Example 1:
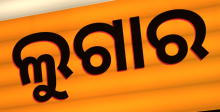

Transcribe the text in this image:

ଲୁଗାର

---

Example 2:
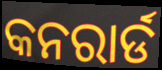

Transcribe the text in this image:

କନରାର୍ଡ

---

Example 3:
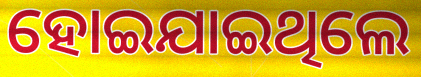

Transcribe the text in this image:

ହୋଇଯାଇଥିଲେ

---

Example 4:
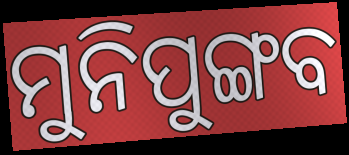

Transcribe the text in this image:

ମୁନିପୁଙ୍ଗବ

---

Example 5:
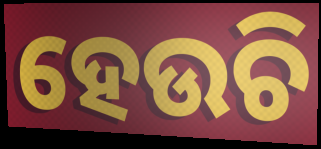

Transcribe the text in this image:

ହେଉଚି